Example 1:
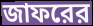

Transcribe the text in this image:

জাফরের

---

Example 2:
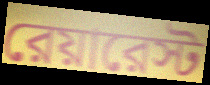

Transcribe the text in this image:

রেয়ারেস্ট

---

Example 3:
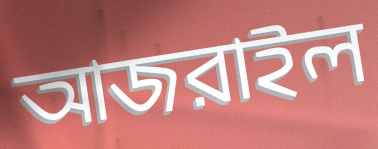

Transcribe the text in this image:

আজরাইল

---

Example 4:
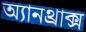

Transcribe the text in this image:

অ্যানথ্রাক্স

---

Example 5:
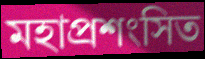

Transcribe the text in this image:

মহাপ্রশংসিত